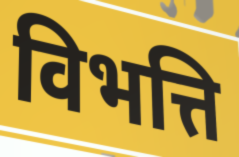
विभत्ति